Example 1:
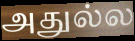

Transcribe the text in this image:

அதுல்ல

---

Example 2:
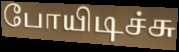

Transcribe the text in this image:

போயிடிச்சு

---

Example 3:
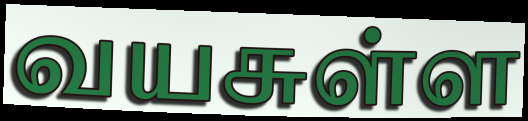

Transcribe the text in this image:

வயசுள்ள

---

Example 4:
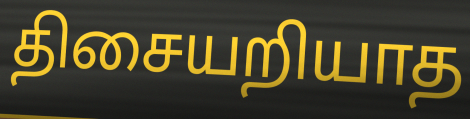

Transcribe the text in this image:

திசையறியாத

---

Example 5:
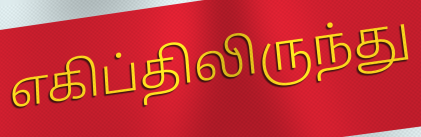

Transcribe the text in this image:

எகிப்திலிருந்து